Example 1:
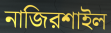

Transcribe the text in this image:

নাজিরশাইল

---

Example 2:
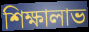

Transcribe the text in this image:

শিক্ষালাভ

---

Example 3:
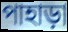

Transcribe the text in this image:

পাহাড়া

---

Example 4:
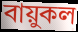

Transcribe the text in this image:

বায়ুকল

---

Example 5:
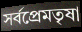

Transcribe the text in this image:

সর্বপ্রেমতৃষা